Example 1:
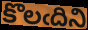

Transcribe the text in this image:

కొలఁదిని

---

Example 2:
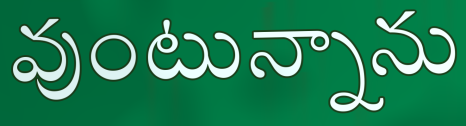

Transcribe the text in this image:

వుంటున్నాను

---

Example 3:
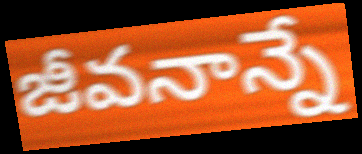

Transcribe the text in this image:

జీవనాన్నే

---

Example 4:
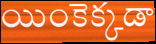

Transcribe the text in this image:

యింకెక్కడా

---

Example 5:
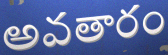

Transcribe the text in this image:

అవతారం